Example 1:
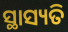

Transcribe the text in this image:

ସ୍ଥାସ୍ୟତି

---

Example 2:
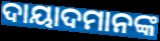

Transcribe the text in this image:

ଦାୟାଦମାନଙ୍କ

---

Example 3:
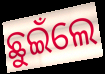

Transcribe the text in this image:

ଛୁଇଁଲେ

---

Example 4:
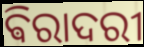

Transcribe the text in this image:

ଵିରାଦରୀ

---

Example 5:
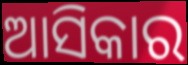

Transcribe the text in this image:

ଆସିକାର